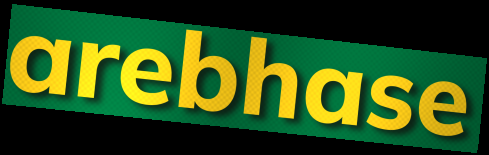
arebhase